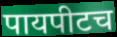
पायपीटच